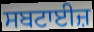
ਸਬਟਾਈਜ਼